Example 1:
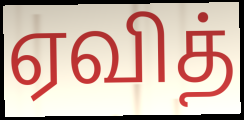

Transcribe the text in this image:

ஏவித்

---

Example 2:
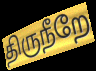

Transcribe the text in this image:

திருநீறே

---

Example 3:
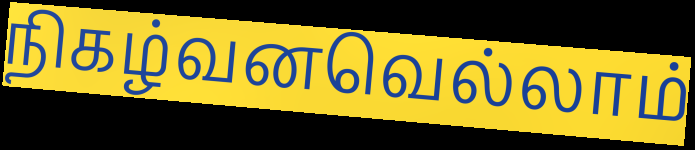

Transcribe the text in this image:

நிகழ்வனவெல்லாம்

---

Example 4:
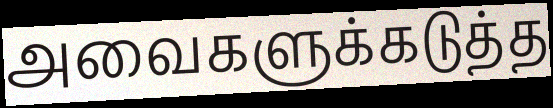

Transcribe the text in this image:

அவைகளுக்கடுத்த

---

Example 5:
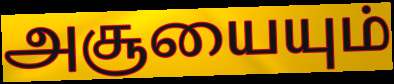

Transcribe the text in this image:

அசூயையும்